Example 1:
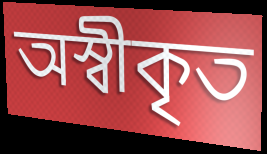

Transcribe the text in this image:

অস্বীকৃত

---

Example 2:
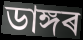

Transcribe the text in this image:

ডাঙ্গৰ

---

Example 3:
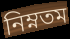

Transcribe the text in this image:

নিম্নতম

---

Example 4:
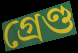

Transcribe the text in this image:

গ্ৰেণ্ড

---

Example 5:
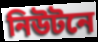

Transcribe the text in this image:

নিউটনে